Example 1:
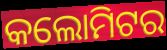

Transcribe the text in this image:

କଲୋମିଟର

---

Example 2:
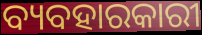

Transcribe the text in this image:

ବ୍ୟବହାରକାରୀ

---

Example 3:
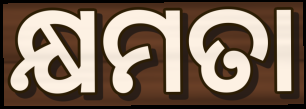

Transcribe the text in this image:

କ୍ଷମତା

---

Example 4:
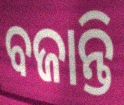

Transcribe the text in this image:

ବଜାନ୍ତି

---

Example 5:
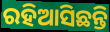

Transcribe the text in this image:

ରହିଆସିଛନ୍ତି